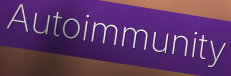
Autoimmunity